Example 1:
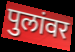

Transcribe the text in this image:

पुलांवर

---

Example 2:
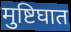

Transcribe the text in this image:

मुष्टिघात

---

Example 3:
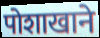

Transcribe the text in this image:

पोशाखाने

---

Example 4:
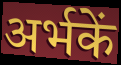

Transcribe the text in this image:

अर्भकें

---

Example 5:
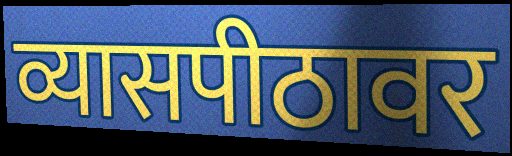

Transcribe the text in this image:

व्यासपीठावर